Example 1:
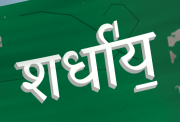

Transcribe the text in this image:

शर्धा॑य॒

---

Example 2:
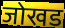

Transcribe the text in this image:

जोखड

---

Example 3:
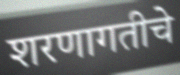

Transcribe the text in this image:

शरणागतीचे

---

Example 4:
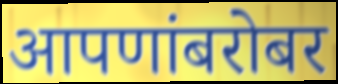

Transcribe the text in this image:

आपणांबरोबर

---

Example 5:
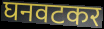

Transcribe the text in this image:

घनवटकर